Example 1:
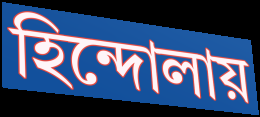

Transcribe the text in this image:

হিন্দোলায়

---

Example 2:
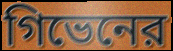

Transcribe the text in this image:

গিভেনের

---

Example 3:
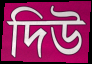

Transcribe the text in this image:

দিউ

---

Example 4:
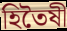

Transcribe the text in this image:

হিতৈষী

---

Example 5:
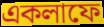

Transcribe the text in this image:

একলাফে